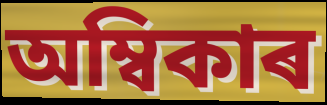
অম্বিকাৰ